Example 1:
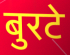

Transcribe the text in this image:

बुरटे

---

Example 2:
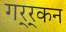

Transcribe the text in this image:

गर्र्कन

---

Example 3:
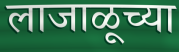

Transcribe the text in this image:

लाजाळूच्या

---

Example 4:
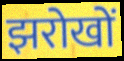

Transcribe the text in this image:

झरोखों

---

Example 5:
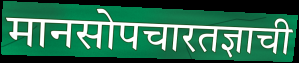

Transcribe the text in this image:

मानसोपचारतज्ञाची